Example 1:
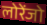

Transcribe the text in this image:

लोरेंजो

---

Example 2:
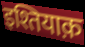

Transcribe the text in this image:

इश्तियाक़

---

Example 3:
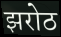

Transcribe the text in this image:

झरोठ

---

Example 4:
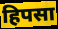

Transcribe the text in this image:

हिपसा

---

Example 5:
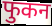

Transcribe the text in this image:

फुकन